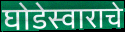
घोडेस्वाराचे